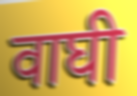
वाघी